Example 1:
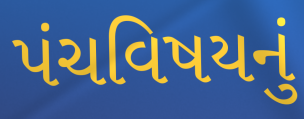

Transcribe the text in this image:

પંચવિષયનું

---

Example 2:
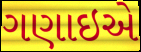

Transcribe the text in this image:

ગણાઇએ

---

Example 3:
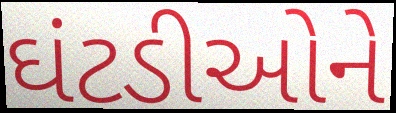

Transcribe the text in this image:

ઘંટડીઓને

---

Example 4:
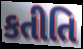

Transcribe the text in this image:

કતીતિ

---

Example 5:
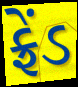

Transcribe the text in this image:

ફ્રેંડ